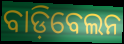
ବାଡ଼ିବେଲନ